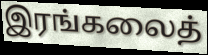
இரங்கலைத்